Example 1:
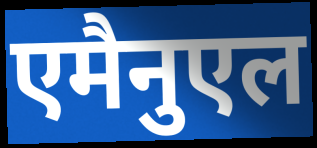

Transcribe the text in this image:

एमैनुएल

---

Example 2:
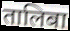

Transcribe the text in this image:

तालिबा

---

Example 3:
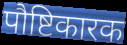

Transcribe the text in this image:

पौष्टिकारक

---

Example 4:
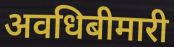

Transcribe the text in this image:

अवधिबीमारी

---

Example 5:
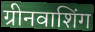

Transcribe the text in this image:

ग्रीनवाशिंग